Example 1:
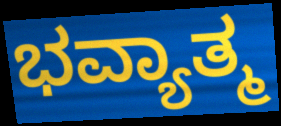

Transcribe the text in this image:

ಭವ್ಯಾತ್ಮ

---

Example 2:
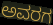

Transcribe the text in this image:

ಅವರಗ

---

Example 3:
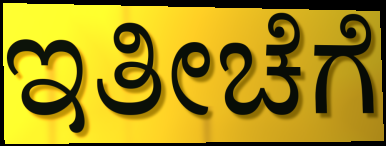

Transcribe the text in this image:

ಇತೀಚೆಗೆ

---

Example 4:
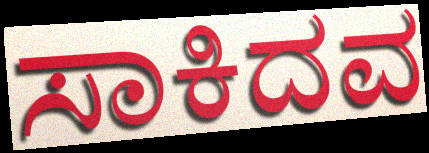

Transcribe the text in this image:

ಸಾಕಿದವ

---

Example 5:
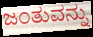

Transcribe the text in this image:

ಜಂತುವನ್ನು